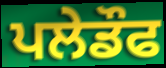
ਪਲੇਡੌਫ